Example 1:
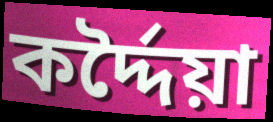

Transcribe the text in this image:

কৰ্দ্দৈয়া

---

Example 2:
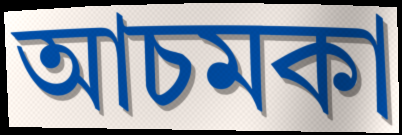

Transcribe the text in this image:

আচমকা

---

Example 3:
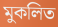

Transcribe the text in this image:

মুকলিত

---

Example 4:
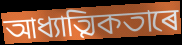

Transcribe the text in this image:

আধ্যাত্মিকতাৰে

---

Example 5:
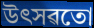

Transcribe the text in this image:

উৎসৱতো